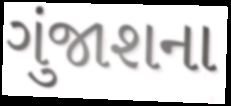
ગુંજાશના